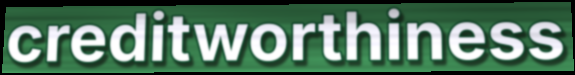
creditworthiness